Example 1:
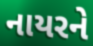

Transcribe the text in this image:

નાયરને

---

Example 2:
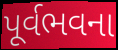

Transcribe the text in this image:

પૂર્વભવના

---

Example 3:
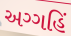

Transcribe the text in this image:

અગ્ગહિં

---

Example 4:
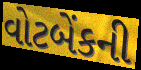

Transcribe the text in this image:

વોટબેંકની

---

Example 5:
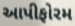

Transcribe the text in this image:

આપીફોરમ